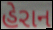
હેરાન